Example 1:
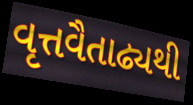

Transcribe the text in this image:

વૃત્તવૈતાઢ્યથી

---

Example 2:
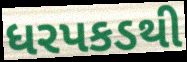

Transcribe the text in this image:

ધરપકડથી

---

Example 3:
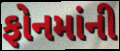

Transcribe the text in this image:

ફોનમાંની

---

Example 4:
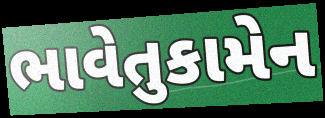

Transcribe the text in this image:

ભાવેતુકામેન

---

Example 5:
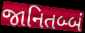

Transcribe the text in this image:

જાનિતબ્બં